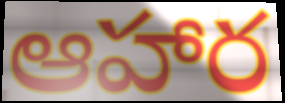
ఆహార